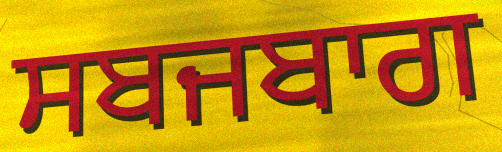
ਸਬਜਬਾਗ